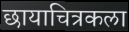
छायाचित्रकला